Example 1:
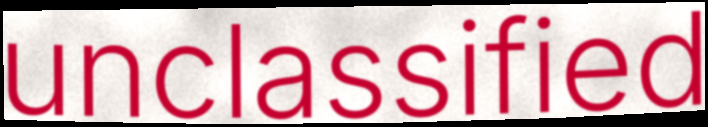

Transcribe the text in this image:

unclassified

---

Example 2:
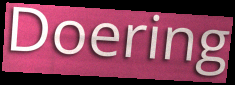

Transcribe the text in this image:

Doering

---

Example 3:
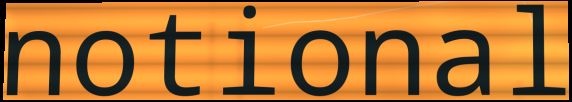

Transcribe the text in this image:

notional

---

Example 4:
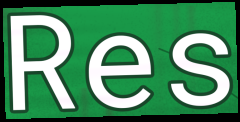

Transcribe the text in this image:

Res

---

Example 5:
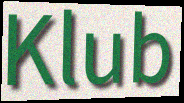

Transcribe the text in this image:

Klub